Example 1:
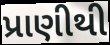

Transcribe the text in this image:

પ્રાણીથી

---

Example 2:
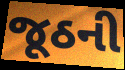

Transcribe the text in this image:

જૂઠની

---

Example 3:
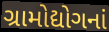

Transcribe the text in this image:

ગ્રામોદ્યોગનાં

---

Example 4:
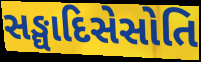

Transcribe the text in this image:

સઙ્ઘાદિસેસોતિ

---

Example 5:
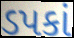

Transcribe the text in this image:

ડપકાં